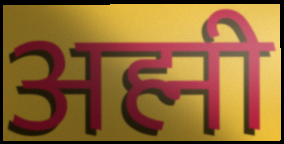
अह्मी